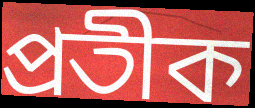
প্ৰতীক